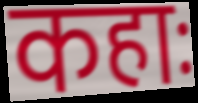
कहाः